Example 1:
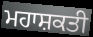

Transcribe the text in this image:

ਮਹਾਸ਼ਕਤੀ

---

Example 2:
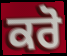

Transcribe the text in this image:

ਕਰੋ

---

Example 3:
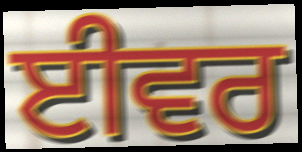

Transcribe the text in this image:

ਈਵਰ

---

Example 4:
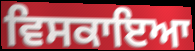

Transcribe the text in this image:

ਵਿਸਕਾਇਆ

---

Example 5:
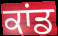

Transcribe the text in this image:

ਕਾਂਡ